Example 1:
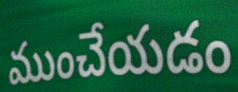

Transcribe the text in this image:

ముంచేయడం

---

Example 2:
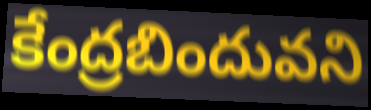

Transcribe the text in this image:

కేంద్రబిందువని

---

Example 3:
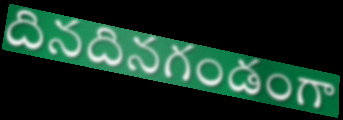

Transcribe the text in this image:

దినదినగండంగా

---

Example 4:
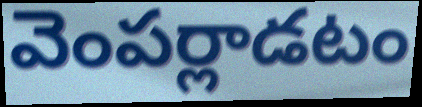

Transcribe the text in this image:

వెంపర్లాడటం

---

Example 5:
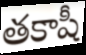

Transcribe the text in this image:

తకాషీ